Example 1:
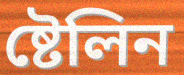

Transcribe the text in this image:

ষ্টেলিন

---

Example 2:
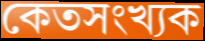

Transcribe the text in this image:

কেতসংখ্যক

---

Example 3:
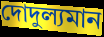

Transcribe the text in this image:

দোদুল্যমান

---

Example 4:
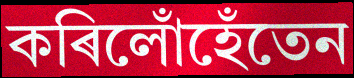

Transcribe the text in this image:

কৰিলোঁহেঁতেন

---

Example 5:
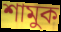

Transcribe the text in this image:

শামুক